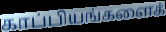
காப்பியங்களைக்